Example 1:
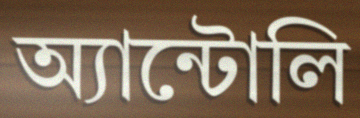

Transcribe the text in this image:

অ্যান্টোলি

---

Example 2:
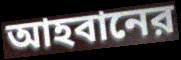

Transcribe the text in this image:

আহবানের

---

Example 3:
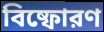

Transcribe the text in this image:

বিষ্ফোরণ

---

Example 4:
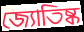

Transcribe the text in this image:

জ্যোতিষ্ক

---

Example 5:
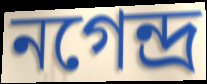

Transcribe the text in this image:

নগেন্দ্র